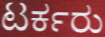
ಟರ್ಕರು